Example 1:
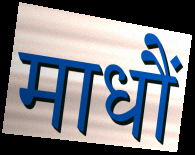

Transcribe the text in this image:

माधौं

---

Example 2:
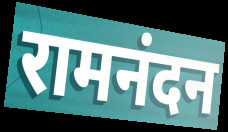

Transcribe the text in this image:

रामनंदन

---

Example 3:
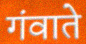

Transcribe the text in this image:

गंवाते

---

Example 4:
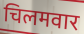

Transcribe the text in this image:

चिलमवार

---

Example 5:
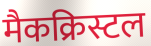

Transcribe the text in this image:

मैकक्रिस्टल